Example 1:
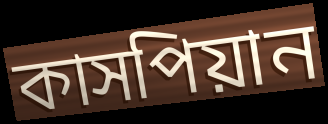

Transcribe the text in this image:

কাসপিয়ান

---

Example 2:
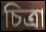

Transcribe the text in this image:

চিত্রা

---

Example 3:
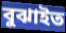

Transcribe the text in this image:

বুঝাইত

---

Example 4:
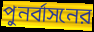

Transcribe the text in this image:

পুনর্বাসনের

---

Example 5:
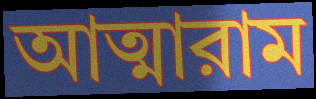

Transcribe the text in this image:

আত্মারাম